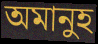
অমানুহ